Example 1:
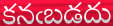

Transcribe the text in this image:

కనఁబడదు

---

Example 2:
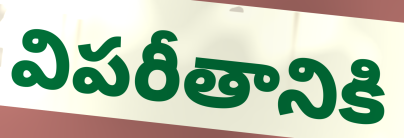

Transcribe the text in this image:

విపరీతానికి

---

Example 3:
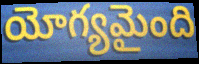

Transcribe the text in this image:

యోగ్యమైంది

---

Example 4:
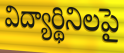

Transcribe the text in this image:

విద్యార్థినిలపై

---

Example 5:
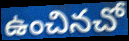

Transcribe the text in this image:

ఉంచినచో